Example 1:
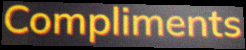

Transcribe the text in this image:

Compliments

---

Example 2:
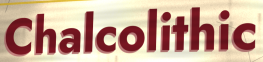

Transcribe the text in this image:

Chalcolithic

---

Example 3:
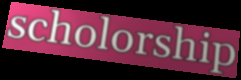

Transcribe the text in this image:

scholorship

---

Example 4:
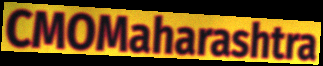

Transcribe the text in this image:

CMOMaharashtra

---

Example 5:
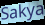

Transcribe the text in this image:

Sakya